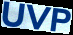
UVP